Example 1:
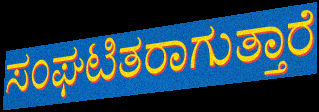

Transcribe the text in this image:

ಸಂಘಟಿತರಾಗುತ್ತಾರೆ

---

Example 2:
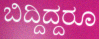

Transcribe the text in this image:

ಬಿದ್ದಿದ್ದರೂ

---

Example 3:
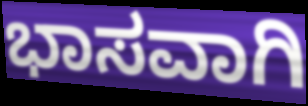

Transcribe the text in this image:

ಭಾಸವಾಗಿ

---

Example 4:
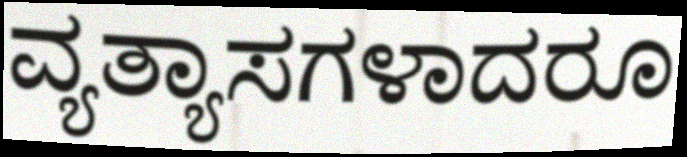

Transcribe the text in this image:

ವ್ಯತ್ಯಾಸಗಳಾದರೂ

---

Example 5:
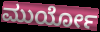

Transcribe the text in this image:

ಮುರ್ಯೋ